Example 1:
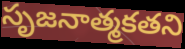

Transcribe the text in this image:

సృజనాత్మకతని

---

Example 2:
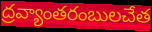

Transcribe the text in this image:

ద్రవ్యాంతరంబులచేత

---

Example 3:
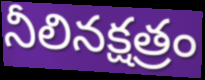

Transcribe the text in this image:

నీలినక్షత్రం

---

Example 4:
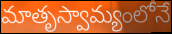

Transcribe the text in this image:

మాతృస్వామ్యంలోనే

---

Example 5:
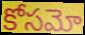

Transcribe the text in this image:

కోసమో